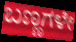
ಬಣ್ಣಗಳೇ